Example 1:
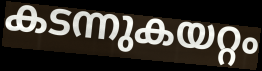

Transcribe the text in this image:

കടന്നുകയറ്റം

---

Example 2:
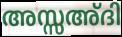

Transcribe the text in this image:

അസ്സഅ്ദി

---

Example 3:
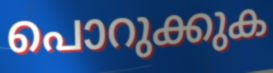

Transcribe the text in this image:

പൊറുക്കുക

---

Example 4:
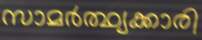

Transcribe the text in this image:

സാമർത്ഥ്യക്കാരി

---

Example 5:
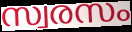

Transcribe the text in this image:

സ്വരസം